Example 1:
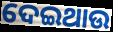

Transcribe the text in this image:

ଦେଇଥାଉ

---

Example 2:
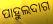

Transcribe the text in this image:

ପାହୁଲଦାଗ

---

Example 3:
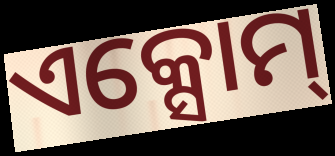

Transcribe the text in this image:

ଏକ୍ସୋମ୍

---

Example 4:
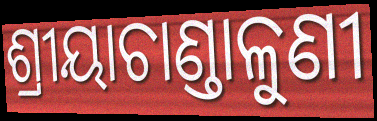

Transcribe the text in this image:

ଶ୍ରୀୟାଚାଣ୍ଡାଳୁଣୀ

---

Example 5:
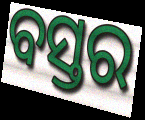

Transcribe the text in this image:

ବସ୍ତର